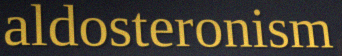
aldosteronism